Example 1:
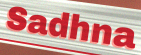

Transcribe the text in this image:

Sadhna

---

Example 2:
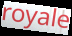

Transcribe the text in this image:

royale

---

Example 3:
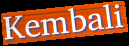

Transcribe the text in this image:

Kembali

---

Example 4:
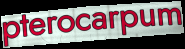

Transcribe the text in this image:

pterocarpum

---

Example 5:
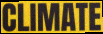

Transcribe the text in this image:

CLIMATE